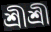
শ্ৰীশ্ৰী